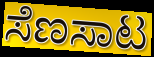
ಸೆಣಸಾಟ